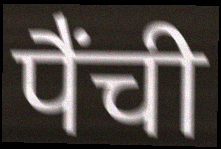
पैंची